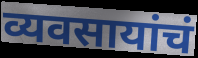
व्यवसायांचं